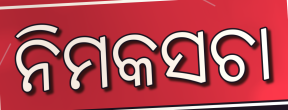
ନିମକସଚା